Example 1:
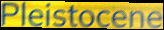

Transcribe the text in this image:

Pleistocene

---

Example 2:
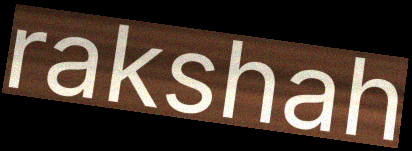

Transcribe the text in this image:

rakshah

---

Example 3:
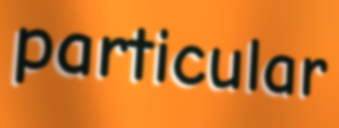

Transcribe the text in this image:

particular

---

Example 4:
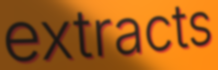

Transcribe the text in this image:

extracts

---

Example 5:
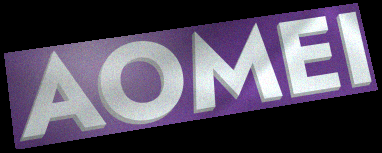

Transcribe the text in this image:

AOMEI